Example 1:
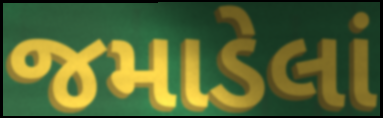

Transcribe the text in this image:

જમાડેલાં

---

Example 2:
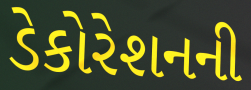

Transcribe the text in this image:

ડેકોરેશનની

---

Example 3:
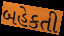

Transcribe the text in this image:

બહેકતી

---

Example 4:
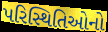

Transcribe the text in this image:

પરિસ્થિતિઓનો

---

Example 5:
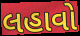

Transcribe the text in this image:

લહાવો